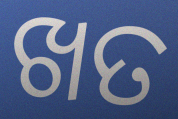
ଖତ